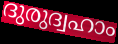
ദുരുദ്വഹാം